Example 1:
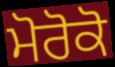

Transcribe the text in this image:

ਮੋਰੋਕੋ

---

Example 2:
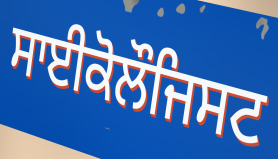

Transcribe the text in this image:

ਸਾਈਕੋਲੌਜਿਸਟ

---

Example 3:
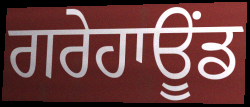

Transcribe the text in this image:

ਗਰੇਹਾਊਂਡ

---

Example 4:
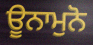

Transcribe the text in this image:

ਊਨਾਮੁਨੋ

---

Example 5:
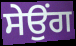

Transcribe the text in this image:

ਸੇਉਂਗ